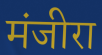
मंजीरा